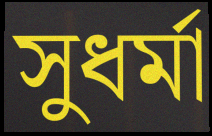
সুধর্মা